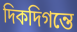
দিকদিগন্তে